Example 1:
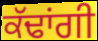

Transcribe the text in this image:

ਕੱਢਾਂਗੀ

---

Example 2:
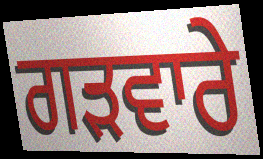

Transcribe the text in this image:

ਗੜਵਾਰੇ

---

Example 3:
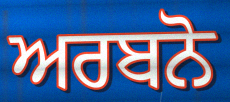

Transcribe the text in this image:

ਅਰਬਨੋ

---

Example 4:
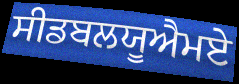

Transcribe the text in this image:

ਸੀਡਬਲਯੂਐਮਏ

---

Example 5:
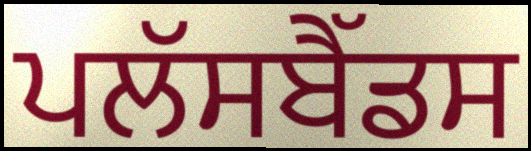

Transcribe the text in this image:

ਪਲੱਸਬੈੱਡਸ